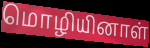
மொழியினாள்